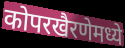
कोपरखैरणेमध्ये